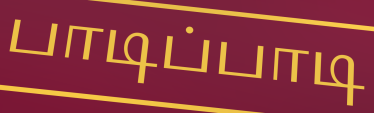
பாடிப்பாடி